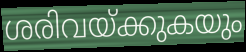
ശരിവയ്ക്കുകയും